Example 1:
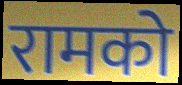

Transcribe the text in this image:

रामको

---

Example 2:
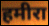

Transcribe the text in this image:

हमीरा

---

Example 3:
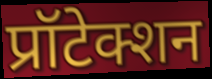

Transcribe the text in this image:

प्रॉटेक्शन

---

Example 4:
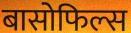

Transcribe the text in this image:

बासोफिल्स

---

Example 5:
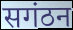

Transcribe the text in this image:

सगंठन